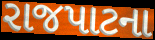
રાજપાટના